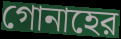
গোনাহের